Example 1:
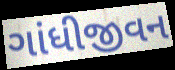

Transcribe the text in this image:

ગાંધીજીવન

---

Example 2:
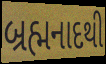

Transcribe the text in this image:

બ્રહ્મનાદથી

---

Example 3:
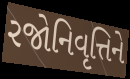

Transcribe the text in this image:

રજોનિવૃત્તિને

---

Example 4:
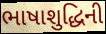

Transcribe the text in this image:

ભાષાશુદ્ધિની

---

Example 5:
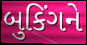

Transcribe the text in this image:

બુકિંગને